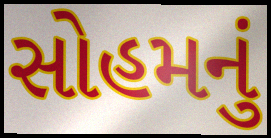
સોહમનું